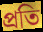
প্ৰতি